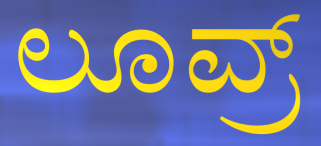
ಲೂವ್ರ್